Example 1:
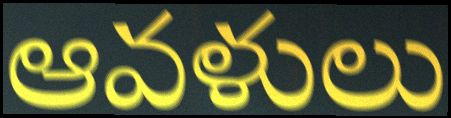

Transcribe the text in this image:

ఆవళులు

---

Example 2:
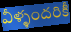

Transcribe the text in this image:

వీళ్ళందరికీ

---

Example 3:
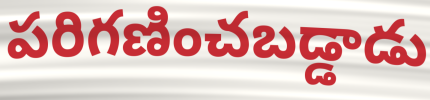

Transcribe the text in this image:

పరిగణించబడ్డాడు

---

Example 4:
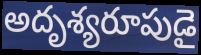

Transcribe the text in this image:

అదృశ్యరూపుడై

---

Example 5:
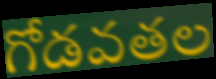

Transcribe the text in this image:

గోడవతల